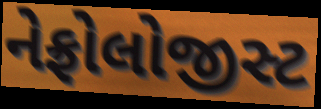
નેફ્રોલોજીસ્ટ